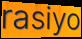
rasiyo